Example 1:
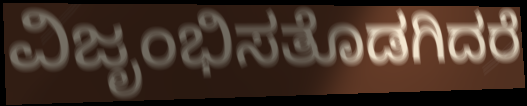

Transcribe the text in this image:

ವಿಜೃಂಭಿಸತೊಡಗಿದರೆ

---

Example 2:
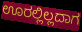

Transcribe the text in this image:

ಊರಲ್ಲಿಲ್ಲದಾಗ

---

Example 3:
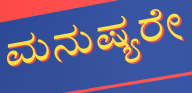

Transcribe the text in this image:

ಮನುಷ್ಯರೇ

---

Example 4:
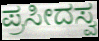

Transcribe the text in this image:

ಪ್ರಸೀದಸ್ವ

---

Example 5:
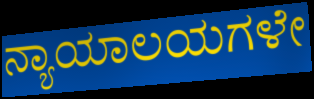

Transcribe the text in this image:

ನ್ಯಾಯಾಲಯಗಳೇ